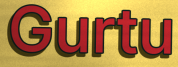
Gurtu